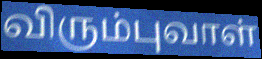
விரும்புவாள்